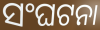
ସଂଘଟନା